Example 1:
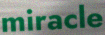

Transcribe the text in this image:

miracle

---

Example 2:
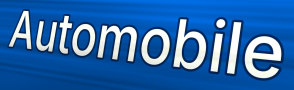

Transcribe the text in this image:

Automobile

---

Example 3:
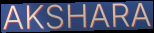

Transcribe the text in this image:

AKSHARA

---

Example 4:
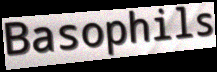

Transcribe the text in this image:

Basophils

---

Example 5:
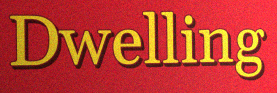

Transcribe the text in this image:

Dwelling